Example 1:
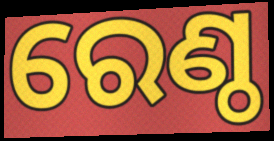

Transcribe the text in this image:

ରେଣ୍ଠ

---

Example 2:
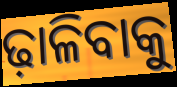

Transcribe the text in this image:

ଢ଼ାଳିବାକୁ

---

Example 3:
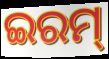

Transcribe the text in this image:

ଇରମ୍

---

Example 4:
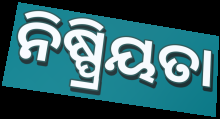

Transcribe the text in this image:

ନିଷ୍ପ୍ରିୟତା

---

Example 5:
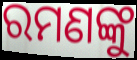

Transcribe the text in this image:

ରମଣଙ୍କୁ